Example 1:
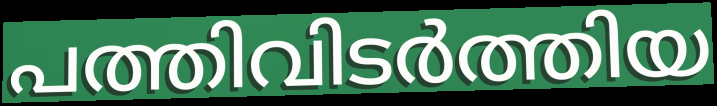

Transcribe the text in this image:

പത്തിവിടർത്തിയ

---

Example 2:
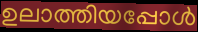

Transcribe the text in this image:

ഉലാത്തിയപ്പോൾ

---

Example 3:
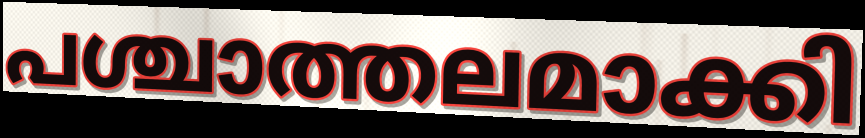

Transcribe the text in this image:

പശ്ചാത്തലമാക്കി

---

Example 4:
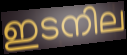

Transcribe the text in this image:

ഇടനില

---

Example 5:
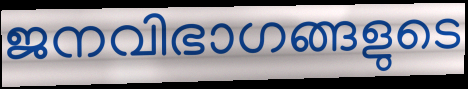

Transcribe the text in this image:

ജനവിഭാഗങ്ങളുടെ